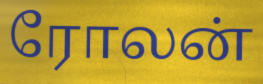
ரோலன்